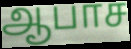
ஆபாச